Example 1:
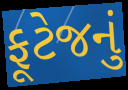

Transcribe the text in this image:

ફૂટેજનું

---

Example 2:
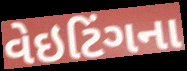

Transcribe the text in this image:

વેઇટિંગના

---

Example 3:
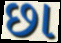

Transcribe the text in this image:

છા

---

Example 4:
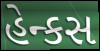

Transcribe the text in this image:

હેન્કસ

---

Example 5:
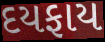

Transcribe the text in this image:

દયફાય